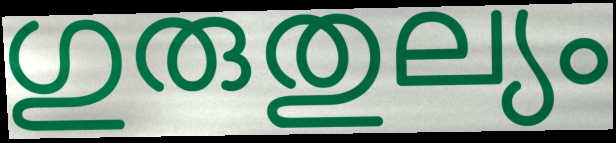
ഗുരുതുല്യം